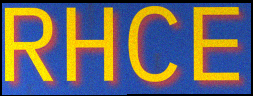
RHCE